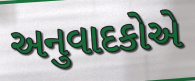
અનુવાદકોએ